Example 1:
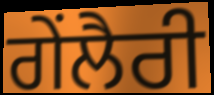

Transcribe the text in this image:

ਗੇਂਲੈਰੀ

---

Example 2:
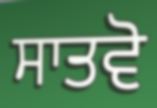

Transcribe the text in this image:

ਸਾਤਵੋ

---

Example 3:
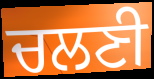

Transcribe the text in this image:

ਚਲਣੀ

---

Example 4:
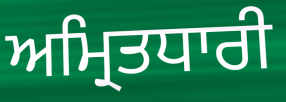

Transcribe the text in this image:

ਅਮ੍ਰਿਤਧਾਰੀ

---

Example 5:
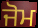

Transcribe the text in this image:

ਜੋਮ